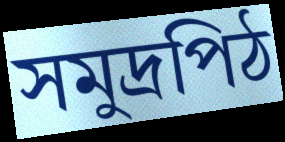
সমুদ্রপিঠ